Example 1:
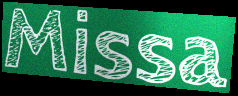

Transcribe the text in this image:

Missa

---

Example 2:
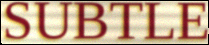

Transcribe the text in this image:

SUBTLE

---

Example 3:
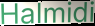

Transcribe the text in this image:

Halmidi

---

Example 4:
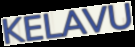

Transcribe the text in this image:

KELAVU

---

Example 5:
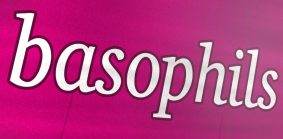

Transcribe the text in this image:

basophils